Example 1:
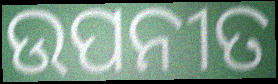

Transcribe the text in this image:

ଉପନୀତ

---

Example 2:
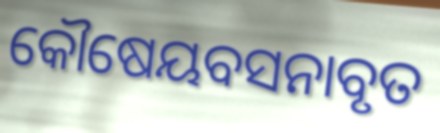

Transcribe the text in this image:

କୌଷେୟବସନାବୃତ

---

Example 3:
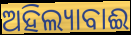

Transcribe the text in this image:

ଅହିଲ୍ୟାବାଈ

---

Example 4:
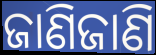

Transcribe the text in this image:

ଜାଣିଜାଣି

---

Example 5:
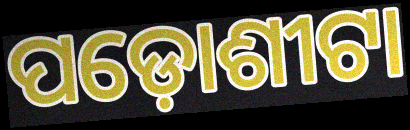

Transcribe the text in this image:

ପଡ଼ୋଶୀଟା